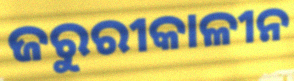
ଜରୁରୀକାଳୀନ